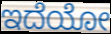
ಇದೆಯೋ